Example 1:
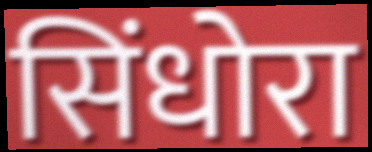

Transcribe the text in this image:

सिंधोरा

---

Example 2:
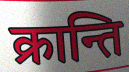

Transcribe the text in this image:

क्रान्ति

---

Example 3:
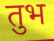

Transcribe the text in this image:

तुभ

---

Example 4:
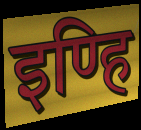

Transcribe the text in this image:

इण्हि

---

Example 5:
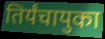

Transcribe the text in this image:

तिर्यंचायुका